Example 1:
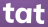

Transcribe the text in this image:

tat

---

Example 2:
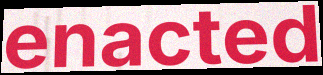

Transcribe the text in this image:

enacted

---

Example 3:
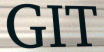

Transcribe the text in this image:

GIT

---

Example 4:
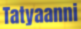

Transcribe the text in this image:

Tatyaanni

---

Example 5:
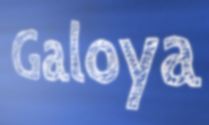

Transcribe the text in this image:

Galoya